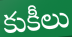
కుకీలు